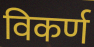
विकर्ण